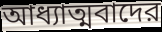
আধ্যাত্মবাদের